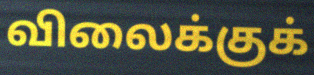
விலைக்குக்